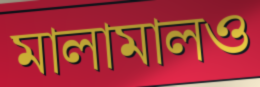
মালামালও